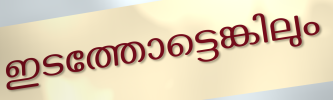
ഇടത്തോട്ടെങ്കിലും